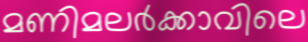
മണിമലർക്കാവിലെ